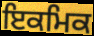
ਇਕਮਿਕ